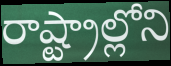
రాష్ట్రాల్లోని